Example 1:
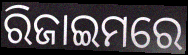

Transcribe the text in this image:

ରିଜାଇମରେ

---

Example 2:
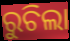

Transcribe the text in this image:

ରୁଚିଲା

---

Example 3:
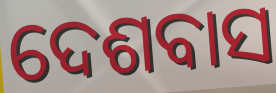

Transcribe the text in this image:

ଦେଶବାସ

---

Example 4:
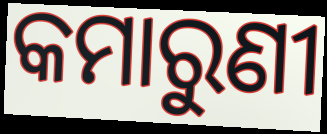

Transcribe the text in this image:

କମାରୁଣୀ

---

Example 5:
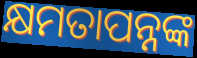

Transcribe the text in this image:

କ୍ଷମତାପନ୍ନଙ୍କ